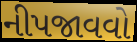
નીપજાવવો